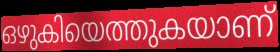
ഒഴുകിയെത്തുകയാണ്